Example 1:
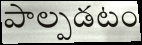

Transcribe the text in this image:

పాల్పడటం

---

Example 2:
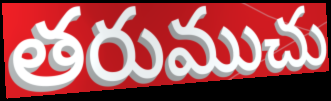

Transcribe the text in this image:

తరుముచు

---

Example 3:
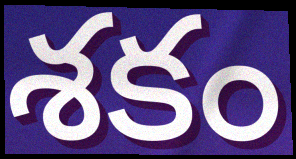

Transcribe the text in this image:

శకం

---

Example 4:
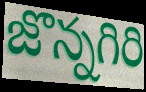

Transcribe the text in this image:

జొన్నగిరి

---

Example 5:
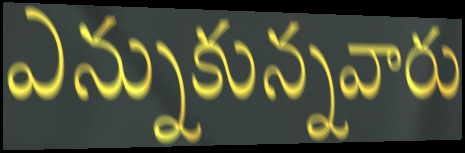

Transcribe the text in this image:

ఎన్నుకున్నవారు